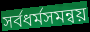
সর্বধর্মসমন্বয়